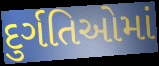
દુર્ગતિઓમાં